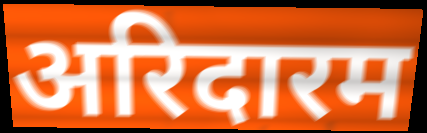
अरिदारम